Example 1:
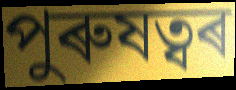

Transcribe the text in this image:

পুৰুষত্বৰ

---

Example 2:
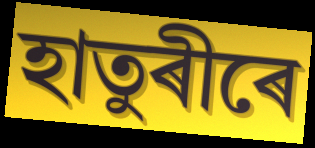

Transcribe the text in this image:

হাতুৰীৰে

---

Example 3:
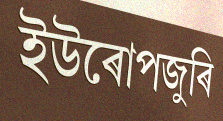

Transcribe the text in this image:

ইউৰোপজুৰি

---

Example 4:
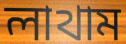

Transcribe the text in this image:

লাথাম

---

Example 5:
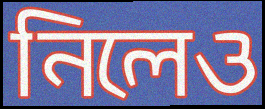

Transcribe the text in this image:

নিলেও